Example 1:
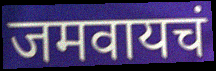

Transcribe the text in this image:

जमवायचं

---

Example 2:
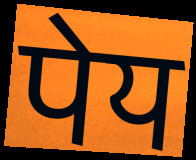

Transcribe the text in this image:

पेय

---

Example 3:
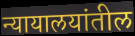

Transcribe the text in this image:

न्यायालयांतील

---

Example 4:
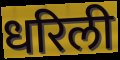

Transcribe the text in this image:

धरिली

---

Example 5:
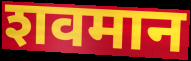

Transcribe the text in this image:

शवमान